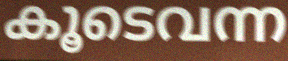
കൂടെവന്ന